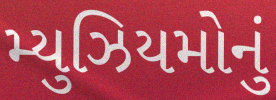
મ્યુઝિયમોનું